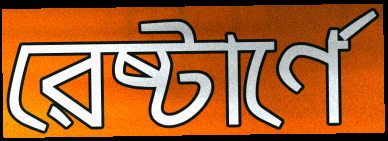
ৱেষ্টাৰ্ণে